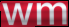
wm